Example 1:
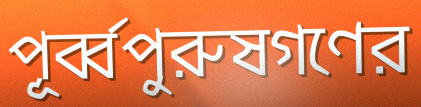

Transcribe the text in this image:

পূর্ব্বপুরুষগণের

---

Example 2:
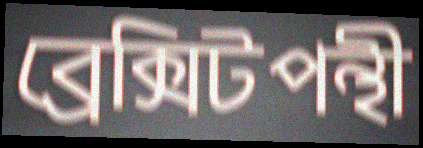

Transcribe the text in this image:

ব্রেক্সিটপন্থী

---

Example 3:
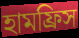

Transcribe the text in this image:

হামফ্রিস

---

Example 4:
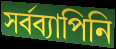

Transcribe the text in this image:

সর্বব্যাপিনি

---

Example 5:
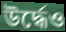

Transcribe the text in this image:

উর্দ্ধেও